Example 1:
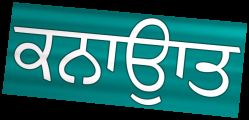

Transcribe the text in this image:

ਕਨਾਉਾਤ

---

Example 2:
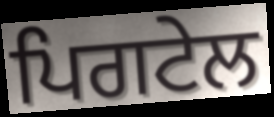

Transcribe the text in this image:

ਪਿਗਟੇਲ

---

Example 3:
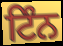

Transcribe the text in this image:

ਟਿੰਨ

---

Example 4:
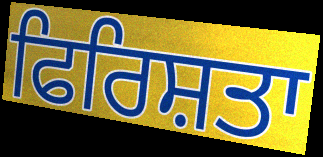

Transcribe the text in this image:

ਫਿਰਿਸ਼ਤਾ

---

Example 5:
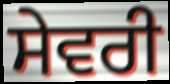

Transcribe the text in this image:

ਸੇਵਰੀ